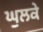
ਘੁਲਕੇ